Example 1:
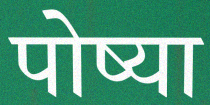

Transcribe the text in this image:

पोष्या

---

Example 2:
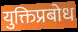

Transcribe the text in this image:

युक्तिप्रबोध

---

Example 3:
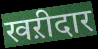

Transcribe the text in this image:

खऱीदार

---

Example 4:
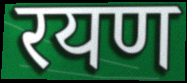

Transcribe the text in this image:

रयण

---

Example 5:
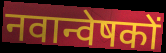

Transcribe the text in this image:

नवान्वेषकों